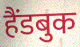
हैंडबुक